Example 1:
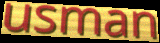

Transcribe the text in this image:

usman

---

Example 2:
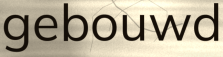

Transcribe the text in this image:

gebouwd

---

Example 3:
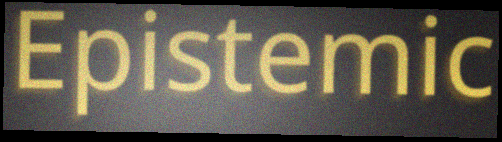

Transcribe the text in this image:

Epistemic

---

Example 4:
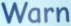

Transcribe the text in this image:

Warn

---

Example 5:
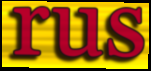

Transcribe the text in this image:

rus